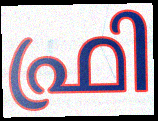
ഫ്രി